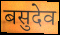
बसुदेव